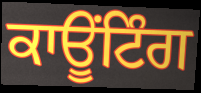
ਕਾਊਂਟਿੰਗ